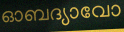
ഓബദ്യാവോ